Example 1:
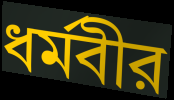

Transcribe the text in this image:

ধর্মবীর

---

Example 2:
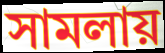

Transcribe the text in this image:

সামলায়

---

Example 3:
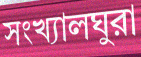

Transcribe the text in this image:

সংখ্যালঘুরা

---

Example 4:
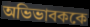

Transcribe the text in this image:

অভিভাবককে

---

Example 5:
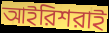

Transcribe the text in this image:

আইরিশরাই